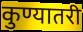
कुण्यातरी